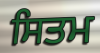
ਸਿਤਮ